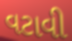
વટાવી